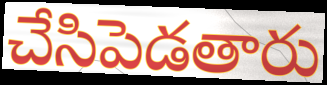
చేసిపెడతారు